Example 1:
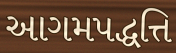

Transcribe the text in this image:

આગમપદ્ધત્તિ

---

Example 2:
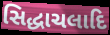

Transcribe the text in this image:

સિદ્ધાચલાદિ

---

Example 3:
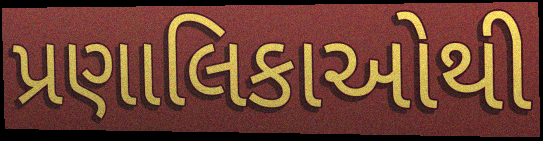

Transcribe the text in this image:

પ્રણાલિકાઓથી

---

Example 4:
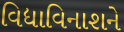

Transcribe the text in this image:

વિદ્યાવિનાશને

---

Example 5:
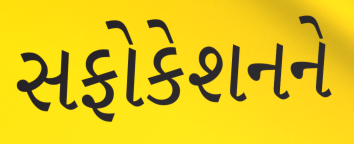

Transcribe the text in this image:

સફોકેશનને